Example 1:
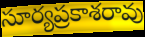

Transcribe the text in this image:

సూర్యప్రకాశరావు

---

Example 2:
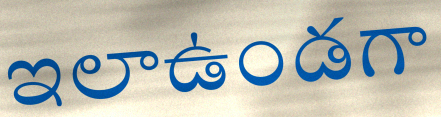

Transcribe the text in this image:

ఇలాఉండగా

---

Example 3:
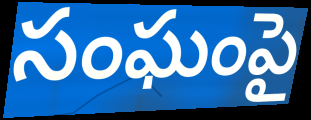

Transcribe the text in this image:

సంఘంపై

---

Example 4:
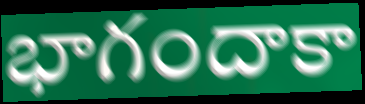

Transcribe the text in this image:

భాగందాకా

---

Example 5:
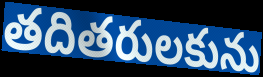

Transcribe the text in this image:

తదితరులకును